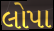
લોપા